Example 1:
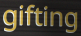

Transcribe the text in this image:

gifting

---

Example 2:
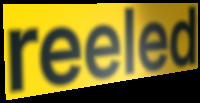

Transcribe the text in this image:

reeled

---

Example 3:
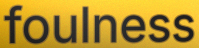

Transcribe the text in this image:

foulness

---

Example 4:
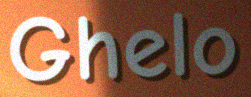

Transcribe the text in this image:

Ghelo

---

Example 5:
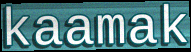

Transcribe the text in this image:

kaamak